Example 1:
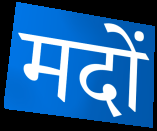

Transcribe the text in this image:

मदों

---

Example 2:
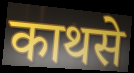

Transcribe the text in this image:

काथसे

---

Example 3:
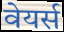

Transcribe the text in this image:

वेयर्स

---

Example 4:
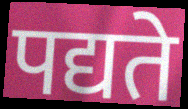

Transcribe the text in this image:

पद्यते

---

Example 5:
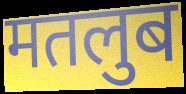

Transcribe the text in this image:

मतलुब